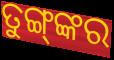
ତୁଙ୍ଗ୍‍ଙ୍କର